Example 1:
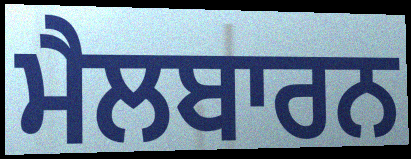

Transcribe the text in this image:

ਮੈਲਬਾਰਨ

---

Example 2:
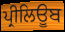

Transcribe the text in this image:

ਪ੍ਰੀਲਿਊਬ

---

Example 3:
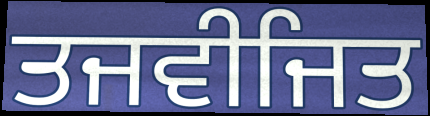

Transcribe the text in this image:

ਤਜਵੀਜਿਤ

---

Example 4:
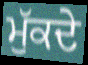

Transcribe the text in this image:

ਮੁੱਕਦੇ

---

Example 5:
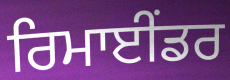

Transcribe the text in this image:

ਰਿਮਾਈਂਡਰ